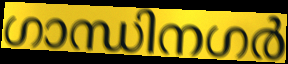
ഗാന്ധിനഗർ